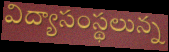
విద్యాసంస్థలున్న